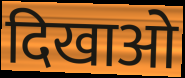
दिखाओ